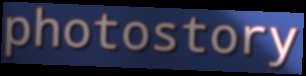
photostory